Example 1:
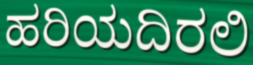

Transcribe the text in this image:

ಹರಿಯದಿರಲಿ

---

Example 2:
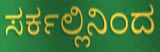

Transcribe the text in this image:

ಸರ್ಕಲ್ಲಿನಿಂದ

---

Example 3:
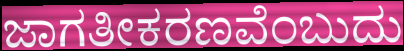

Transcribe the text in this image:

ಜಾಗತೀಕರಣವೆಂಬುದು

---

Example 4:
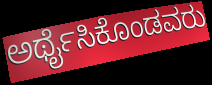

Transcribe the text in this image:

ಅರ್ಥೈಸಿಕೊಂಡವರು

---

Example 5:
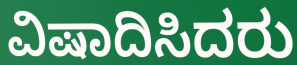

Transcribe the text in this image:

ವಿಷಾದಿಸಿದರು